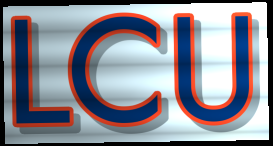
LCU